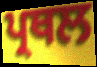
ਪ੍ਰਥਲ